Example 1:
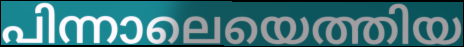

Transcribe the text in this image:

പിന്നാലെയെത്തിയ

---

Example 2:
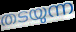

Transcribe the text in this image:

തടയുന്ന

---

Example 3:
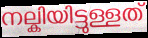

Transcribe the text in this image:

നല്കിയിട്ടുള്ളത്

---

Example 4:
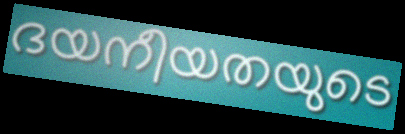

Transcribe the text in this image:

ദയനീയതയുടെ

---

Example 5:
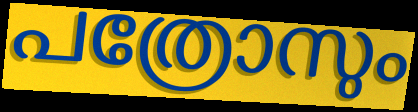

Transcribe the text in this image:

പത്രോസും